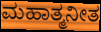
ಮಹಾತ್ಮನೀತ